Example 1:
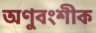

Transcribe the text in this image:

অণুবংশীক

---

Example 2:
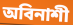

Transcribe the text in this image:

অবিনাশী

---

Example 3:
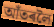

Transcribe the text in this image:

আঁতৰলৈ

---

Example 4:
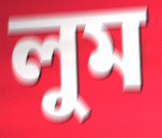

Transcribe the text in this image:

লুম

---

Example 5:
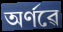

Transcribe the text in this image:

অৰ্ণৱে